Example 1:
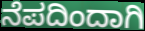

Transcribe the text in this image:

ನೆಪದಿಂದಾಗಿ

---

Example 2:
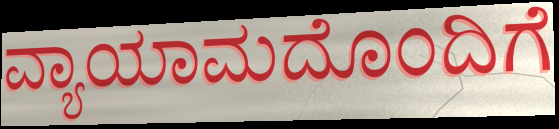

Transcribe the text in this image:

ವ್ಯಾಯಾಮದೊಂದಿಗೆ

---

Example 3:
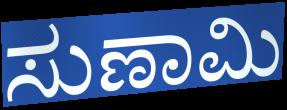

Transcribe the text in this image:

ಸುಣಾಮಿ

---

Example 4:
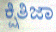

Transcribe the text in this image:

ಕ್ಷಿತಿಜಾ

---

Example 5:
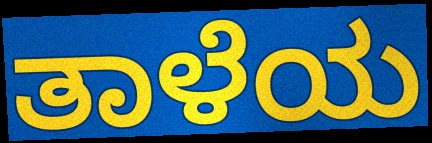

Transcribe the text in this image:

ತಾಳೆಯ